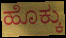
ಹೊಕ್ಕು